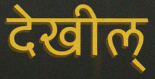
देखील्